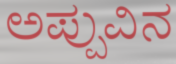
ಅಪ್ಪುವಿನ